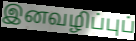
இனவழிப்புப்